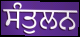
ਸੰਤੁਲਨ